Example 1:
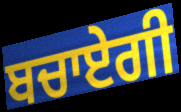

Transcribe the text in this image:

ਬਚਾਏਗੀ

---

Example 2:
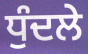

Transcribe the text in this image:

ਧੁੰਦਲੇ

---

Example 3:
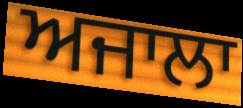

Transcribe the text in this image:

ਅਜਾਲਾ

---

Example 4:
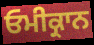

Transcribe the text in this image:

ਓਮੀਕ੍ਰਾਨ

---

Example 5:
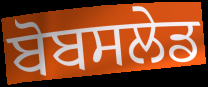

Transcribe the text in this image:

ਬੋਬਸਲੇਡ